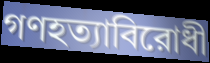
গণহত্যাবিরোধী